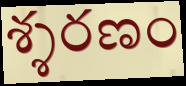
శ్శరణం